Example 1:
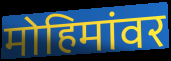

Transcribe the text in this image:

मोहिमांवर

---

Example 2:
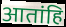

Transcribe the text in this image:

आतांहि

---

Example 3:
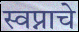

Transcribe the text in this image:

स्वप्नाचे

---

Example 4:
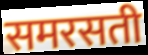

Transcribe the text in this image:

समरसती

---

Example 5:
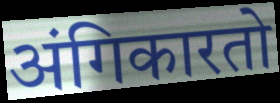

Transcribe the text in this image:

अंगिकारतो